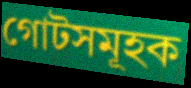
গোটসমূহক